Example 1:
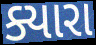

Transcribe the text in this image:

ક્યારા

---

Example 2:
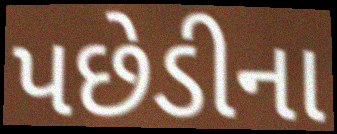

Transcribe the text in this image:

પછેડીના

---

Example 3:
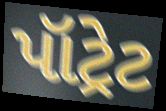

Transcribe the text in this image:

પૉટ્રેટ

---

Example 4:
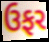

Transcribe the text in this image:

ઉફર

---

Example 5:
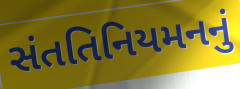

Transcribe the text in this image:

સંતતિનિયમનનું